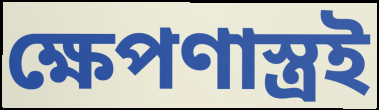
ক্ষেপণাস্ত্রই